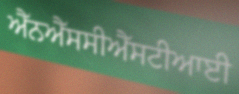
ਐੱਨਐੱਸਸੀਐੱਸਟੀਆਈ